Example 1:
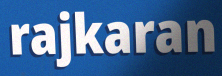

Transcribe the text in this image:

rajkaran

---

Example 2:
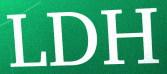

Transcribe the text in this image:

LDH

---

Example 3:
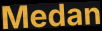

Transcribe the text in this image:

Medan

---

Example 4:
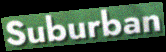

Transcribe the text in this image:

Suburban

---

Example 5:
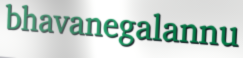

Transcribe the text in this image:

bhavanegalannu